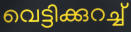
വെട്ടിക്കുറച്ച്